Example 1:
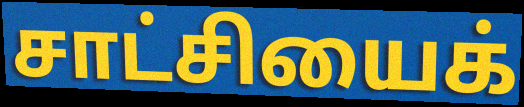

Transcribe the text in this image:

சாட்சியைக்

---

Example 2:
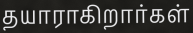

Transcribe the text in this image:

தயாராகிறார்கள்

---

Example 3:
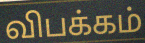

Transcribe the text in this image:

விபக்கம்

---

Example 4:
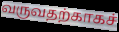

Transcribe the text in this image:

வருவதற்காகச்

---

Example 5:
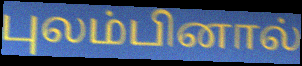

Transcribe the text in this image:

புலம்பினால்